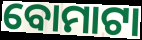
ବୋମାଟା